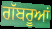
ਗੱਬਰੂਆਂ